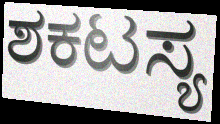
ಶಕಟಸ್ಯ